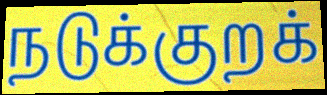
நடுக்குறக்